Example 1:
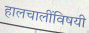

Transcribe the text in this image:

हालचालींविषयी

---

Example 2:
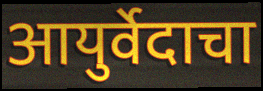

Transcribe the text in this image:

आयुर्वेदाचा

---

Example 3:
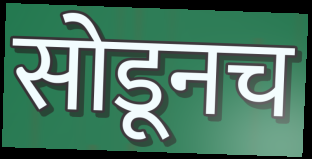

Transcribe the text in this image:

सोडूनच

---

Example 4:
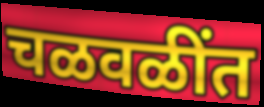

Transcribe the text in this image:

चळवळींत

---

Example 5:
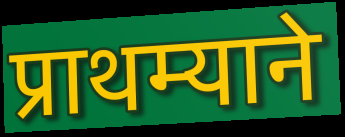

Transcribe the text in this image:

प्राथम्याने